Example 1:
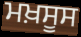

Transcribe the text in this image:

ਮਖ਼ਸੂਸ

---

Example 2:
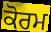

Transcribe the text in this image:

ਕੋਰਮ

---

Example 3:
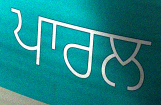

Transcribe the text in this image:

ਪਾਰਲ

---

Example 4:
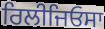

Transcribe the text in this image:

ਰਿਲੀਜਿਓਸਾ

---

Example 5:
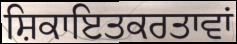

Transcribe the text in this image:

ਸ਼ਿਕਾਇਤਕਰਤਾਵਾਂ